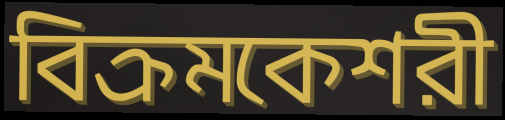
বিক্রমকেশরী